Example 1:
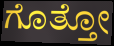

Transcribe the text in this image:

ಗೊತ್ತೋ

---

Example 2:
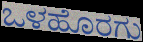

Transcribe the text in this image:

ಒಳಹೊರಗು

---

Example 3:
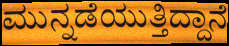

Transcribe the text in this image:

ಮುನ್ನಡೆಯುತ್ತಿದ್ದಾನೆ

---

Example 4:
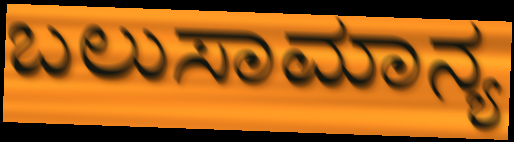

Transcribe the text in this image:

ಬಲುಸಾಮಾನ್ಯ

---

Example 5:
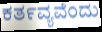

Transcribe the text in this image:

ಕರ್ತವ್ಯವೆಂದು